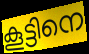
കൂട്ടിനെ